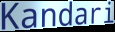
Kandari